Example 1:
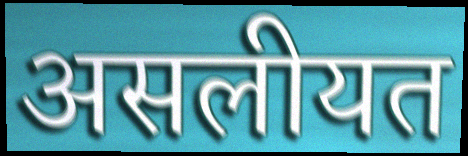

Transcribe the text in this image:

असलीयत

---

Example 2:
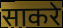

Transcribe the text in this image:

साकरे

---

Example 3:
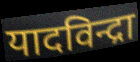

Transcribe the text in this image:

यादविन्द्रा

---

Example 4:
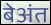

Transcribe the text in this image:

बेअंत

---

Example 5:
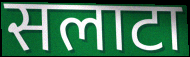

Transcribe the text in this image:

सलाटा